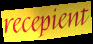
recepient